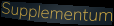
Supplementum